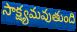
సాక్ష్యమవుతుంది